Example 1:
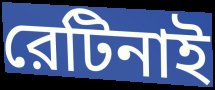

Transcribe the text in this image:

রেটিনাই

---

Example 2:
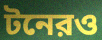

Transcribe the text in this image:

টনেরও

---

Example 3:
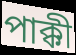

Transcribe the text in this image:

পাক্কী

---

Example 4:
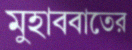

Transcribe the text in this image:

মুহাববাতের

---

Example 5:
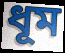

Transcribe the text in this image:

ধূম